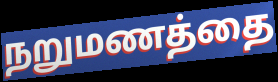
நறுமணத்தை